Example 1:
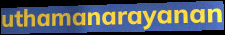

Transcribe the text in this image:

uthamanarayanan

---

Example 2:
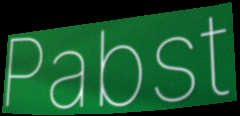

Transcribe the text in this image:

Pabst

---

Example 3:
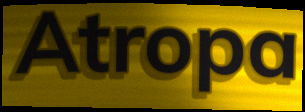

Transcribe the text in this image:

Atropa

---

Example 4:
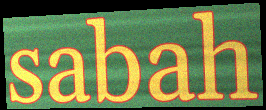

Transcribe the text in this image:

sabah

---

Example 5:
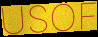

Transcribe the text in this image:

USOF